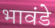
भावंडे